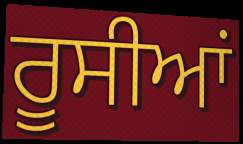
ਰੂਸੀਆਂ